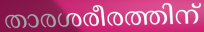
താരശരീരത്തിന്